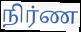
நிர்ண